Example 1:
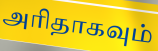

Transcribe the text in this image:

அரிதாகவும்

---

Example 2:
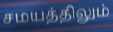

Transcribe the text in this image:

சமயத்திலும்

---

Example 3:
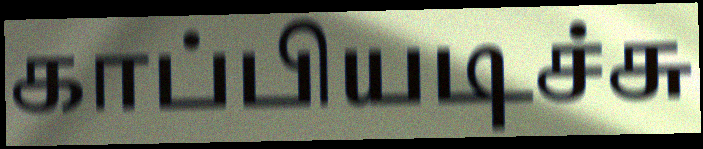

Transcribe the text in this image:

காப்பியடிச்சு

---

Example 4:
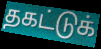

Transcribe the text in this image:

தகட்டுக்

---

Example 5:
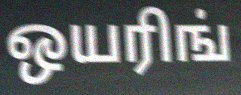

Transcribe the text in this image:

ஒயரிங்